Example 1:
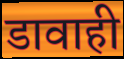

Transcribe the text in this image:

डावाही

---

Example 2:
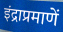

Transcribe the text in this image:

इंद्राप्रमाणें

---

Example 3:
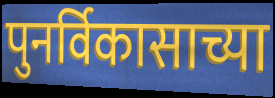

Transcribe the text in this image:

पुनर्विकासाच्या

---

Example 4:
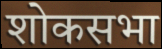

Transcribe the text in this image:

शोकसभा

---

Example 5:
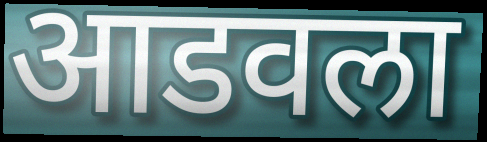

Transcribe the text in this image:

आडवला